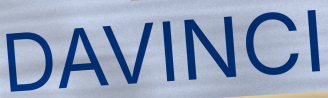
DAVINCI